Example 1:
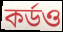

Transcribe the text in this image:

কর্ডও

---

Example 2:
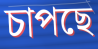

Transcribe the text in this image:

চাপছে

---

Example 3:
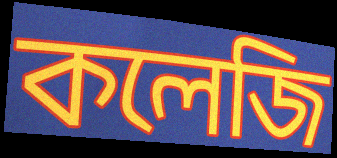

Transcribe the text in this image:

কলেজি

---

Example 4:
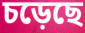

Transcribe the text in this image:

চড়েছে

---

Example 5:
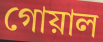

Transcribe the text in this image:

গোয়াল